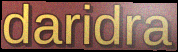
daridra